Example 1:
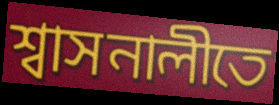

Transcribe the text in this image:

শ্বাসনালীতে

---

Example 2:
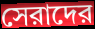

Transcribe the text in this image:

সেরাদের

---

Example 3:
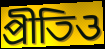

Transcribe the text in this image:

প্রীতিও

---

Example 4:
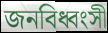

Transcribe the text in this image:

জনবিধ্বংসী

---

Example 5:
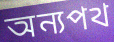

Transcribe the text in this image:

অন্যপথ